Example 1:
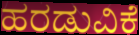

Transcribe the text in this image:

ಹರಡುವಿಕೆ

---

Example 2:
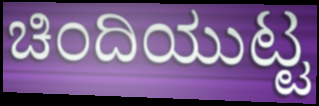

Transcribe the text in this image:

ಚಿಂದಿಯುಟ್ಟ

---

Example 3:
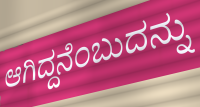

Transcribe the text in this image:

ಆಗಿದ್ದನೆಂಬುದನ್ನು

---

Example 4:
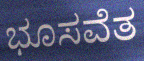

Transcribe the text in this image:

ಭೂಸವೆತ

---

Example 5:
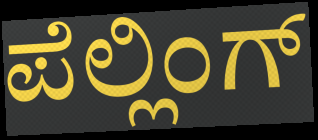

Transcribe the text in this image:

ಪೆಲ್ಲಿಂಗ್